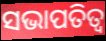
ସଭାପତିତ୍ଵ